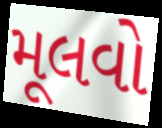
મૂલવો